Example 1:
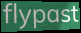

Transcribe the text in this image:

flypast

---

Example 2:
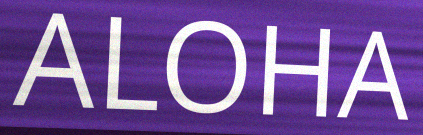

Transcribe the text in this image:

ALOHA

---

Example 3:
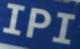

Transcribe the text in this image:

IPI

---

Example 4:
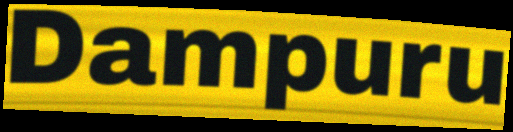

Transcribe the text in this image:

Dampuru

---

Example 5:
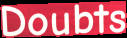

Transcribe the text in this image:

Doubts